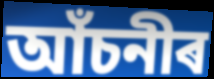
আঁচনীৰ